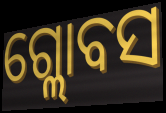
ଗ୍ଲୋବସ